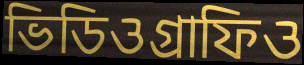
ভিডিওগ্রাফিও